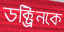
ডক্ট্রিনকে